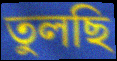
তুলছি